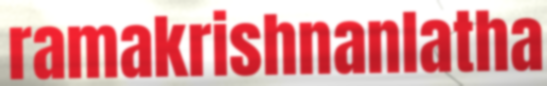
ramakrishnanlatha